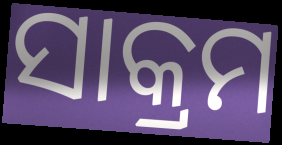
ସାକ୍ରମ